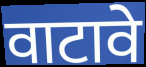
वाटावे